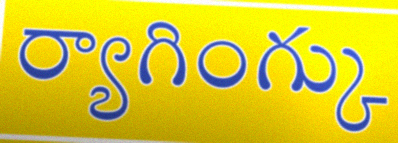
ర్యాగింగ్కు